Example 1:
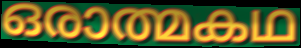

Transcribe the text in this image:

ഒരാത്മകഥ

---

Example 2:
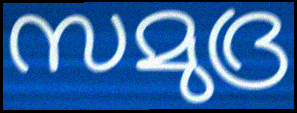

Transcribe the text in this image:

സമുദ്ര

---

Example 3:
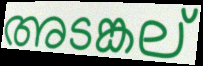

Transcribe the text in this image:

അടങ്കല്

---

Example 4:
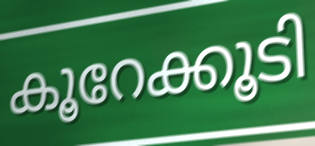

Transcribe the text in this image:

കൂറേക്കൂടി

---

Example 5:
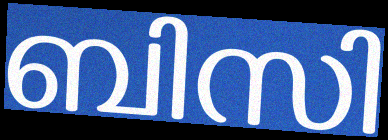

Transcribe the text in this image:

ബിസി